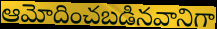
ఆమోదించబడినవానిగా